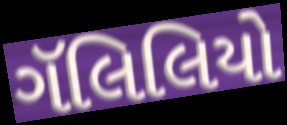
ગૅલિલિયો